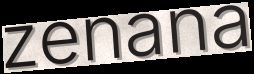
zenana